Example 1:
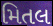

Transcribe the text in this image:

મિતલ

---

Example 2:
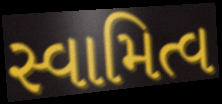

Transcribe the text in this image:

સ્વામિત્વ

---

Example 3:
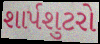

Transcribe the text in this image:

શાર્પશુટરો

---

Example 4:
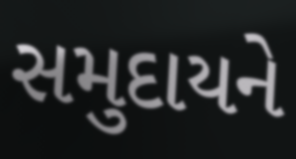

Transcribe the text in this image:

સમુદાયને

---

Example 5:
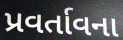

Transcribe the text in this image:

પ્રવર્તાવના